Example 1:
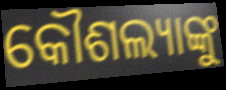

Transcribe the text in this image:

କୌଶଲ୍ୟାଙ୍କୁ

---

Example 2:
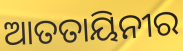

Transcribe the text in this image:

ଆତତାୟିନୀର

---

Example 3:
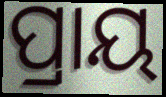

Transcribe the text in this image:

ପ୍ରାୟ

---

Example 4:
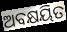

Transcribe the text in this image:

ଅବକ୍ଷୟିତ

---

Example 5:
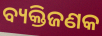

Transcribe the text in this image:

ବ୍ୟକ୍ତିଜଣକ